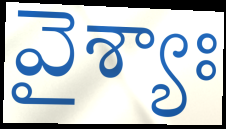
వైశ్యాః